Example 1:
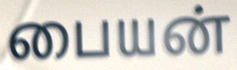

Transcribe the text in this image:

பையன்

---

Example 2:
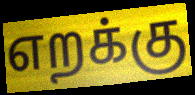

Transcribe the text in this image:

எறக்கு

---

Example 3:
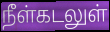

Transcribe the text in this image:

நீள்கடலுள்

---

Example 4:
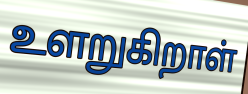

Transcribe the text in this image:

உளறுகிறாள்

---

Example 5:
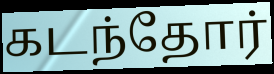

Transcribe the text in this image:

கடந்தோர்